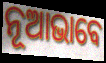
ନୂଆଭାବେ